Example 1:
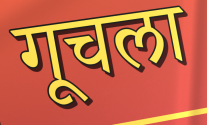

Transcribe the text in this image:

गूचला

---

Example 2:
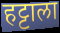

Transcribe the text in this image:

हट्टाला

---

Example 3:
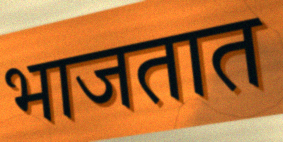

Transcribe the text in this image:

भाजतात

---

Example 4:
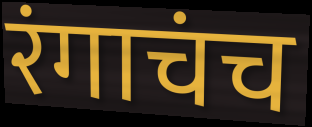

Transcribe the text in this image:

रंगाचंच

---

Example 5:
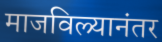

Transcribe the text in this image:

माजविल्यानंतर